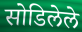
सोडिलेले